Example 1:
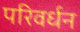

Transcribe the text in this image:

परिवर्धन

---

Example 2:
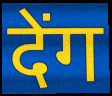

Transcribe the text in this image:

देंग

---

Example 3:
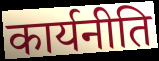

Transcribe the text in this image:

कार्यनीति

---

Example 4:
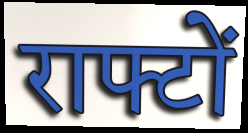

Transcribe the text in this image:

राफ्टों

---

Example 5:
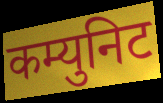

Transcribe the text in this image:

कम्युनिट